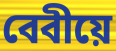
বেবীয়ে